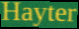
Hayter